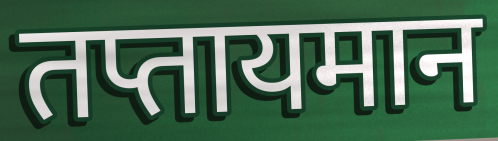
तप्तायमान